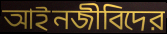
আইনজীবিদের